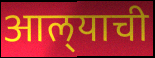
आल्याची